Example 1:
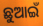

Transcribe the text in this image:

ଛୁଆଇଁ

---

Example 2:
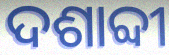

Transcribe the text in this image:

ଦଶାବ୍ଦୀ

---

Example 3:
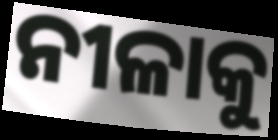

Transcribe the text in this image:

ନୀଳାକୁ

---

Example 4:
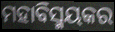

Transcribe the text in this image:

ମହାବିସ୍ମୟକର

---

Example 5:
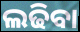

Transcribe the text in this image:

ଲଢିବା